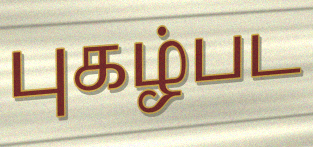
புகழ்பட